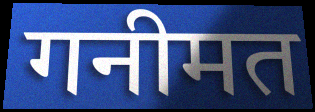
गनीमत